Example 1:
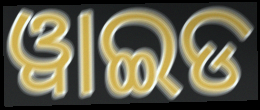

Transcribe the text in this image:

ୱାଇଡ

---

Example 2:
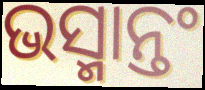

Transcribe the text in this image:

ଭସ୍ମାନ୍ତଂ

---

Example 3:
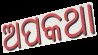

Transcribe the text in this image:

ଅପକଥା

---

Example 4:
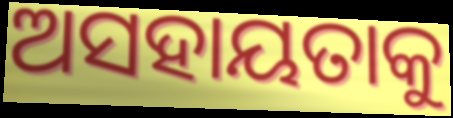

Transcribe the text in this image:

ଅସହାୟତାକୁ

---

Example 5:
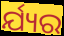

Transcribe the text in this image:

ର୍ଯ୍ୟର